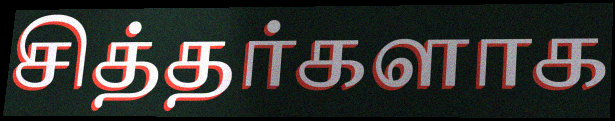
சித்தர்களாக